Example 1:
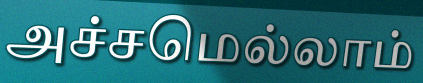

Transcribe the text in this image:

அச்சமெல்லாம்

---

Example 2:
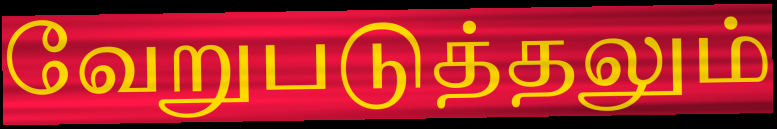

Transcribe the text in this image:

வேறுபடுத்தலும்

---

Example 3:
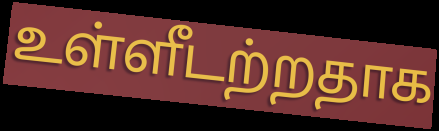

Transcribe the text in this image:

உள்ளீடற்றதாக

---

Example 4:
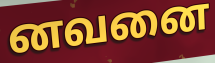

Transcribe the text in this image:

னவனை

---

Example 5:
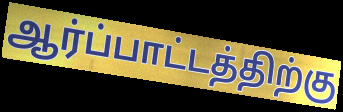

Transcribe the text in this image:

ஆர்ப்பாட்டத்திற்கு